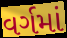
વર્ગમાં